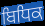
ਬਿਧਿਕ